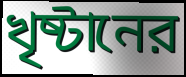
খৃষ্টানের